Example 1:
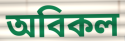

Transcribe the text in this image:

অবিকল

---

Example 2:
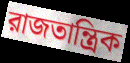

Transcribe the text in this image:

রাজতান্ত্রিক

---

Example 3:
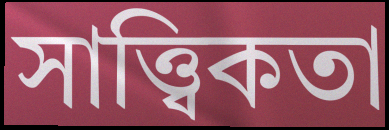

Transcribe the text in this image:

সাত্ত্বিকতা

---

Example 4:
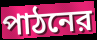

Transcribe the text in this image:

পাঠনের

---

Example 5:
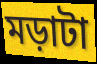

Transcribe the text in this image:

মড়াটা